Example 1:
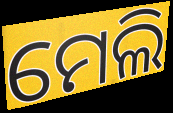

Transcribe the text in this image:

ମେଲି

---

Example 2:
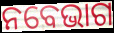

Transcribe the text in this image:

ନବେଭାଗ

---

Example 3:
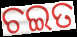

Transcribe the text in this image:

ଚଇତ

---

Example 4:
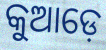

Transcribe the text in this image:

କୁଆଡ଼େ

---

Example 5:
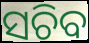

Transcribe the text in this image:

ସଚିବ